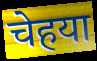
चेहया